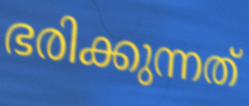
ഭരിക്കുന്നത്